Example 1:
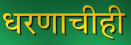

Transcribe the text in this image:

धरणाचीही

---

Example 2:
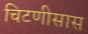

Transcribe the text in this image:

चिटणीसास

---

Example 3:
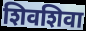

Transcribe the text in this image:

शिवशिवा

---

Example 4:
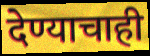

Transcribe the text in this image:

देण्याचाही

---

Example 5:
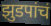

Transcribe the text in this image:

झुडपांचं